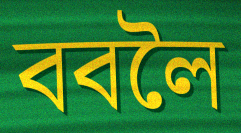
ববলৈ